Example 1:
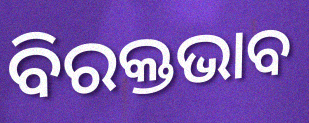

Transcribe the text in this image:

ବିରକ୍ତଭାବ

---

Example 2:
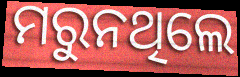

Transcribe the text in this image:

ମରୁନଥିଲେ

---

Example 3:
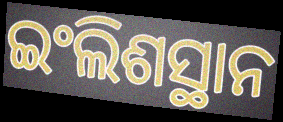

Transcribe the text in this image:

ଇଂଲିଶସ୍ଥାନ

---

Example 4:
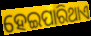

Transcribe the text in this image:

ହେଇପାରିଥାଏ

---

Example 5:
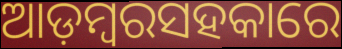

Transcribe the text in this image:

ଆଡ଼ମ୍ବରସହକାରେ